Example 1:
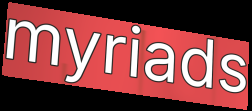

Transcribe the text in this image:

myriads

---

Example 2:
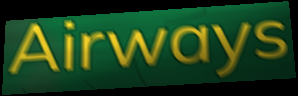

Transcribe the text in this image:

Airways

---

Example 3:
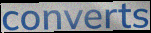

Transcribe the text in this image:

converts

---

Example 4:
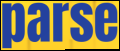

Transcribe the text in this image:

parse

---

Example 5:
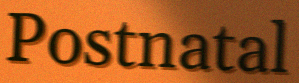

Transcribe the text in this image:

Postnatal